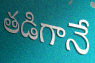
తడిగానే